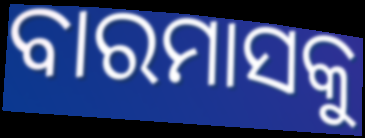
ବାରମାସକୁ